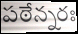
పఠేన్నరః